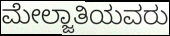
ಮೇಲ್ಜಾತಿಯವರು